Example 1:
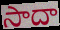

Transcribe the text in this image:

సాదా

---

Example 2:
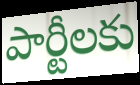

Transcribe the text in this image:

పార్టీలకు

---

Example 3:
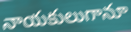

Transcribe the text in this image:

నాయకులుగానూ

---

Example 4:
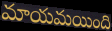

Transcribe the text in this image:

మాయమయింది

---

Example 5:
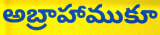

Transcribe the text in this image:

అబ్రాహాముకూ